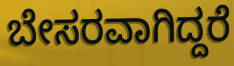
ಬೇಸರವಾಗಿದ್ದರೆ